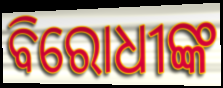
ବିରୋଧୀଙ୍କ